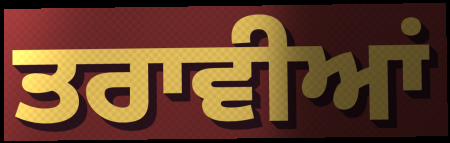
ਤਰਾਵੀਆਂ